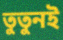
তুতুনই